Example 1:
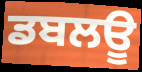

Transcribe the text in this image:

ਡਬਲਊ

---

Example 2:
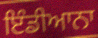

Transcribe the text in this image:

ਇੰਡੀਆਨਾ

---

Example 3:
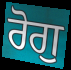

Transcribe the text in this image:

ਰੋਗੁ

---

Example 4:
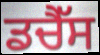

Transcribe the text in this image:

ਡਚੈੱਸ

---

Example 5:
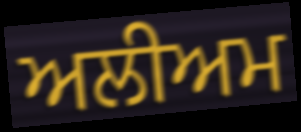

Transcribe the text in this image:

ਅਲੀਅਮ